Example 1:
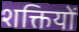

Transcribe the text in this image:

शक्तियों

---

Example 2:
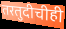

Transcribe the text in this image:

तरतुदीचीही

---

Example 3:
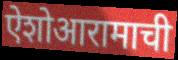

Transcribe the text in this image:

ऐशोआरामाची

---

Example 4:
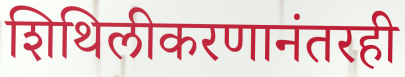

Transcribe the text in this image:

शिथिलीकरणानंतरही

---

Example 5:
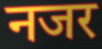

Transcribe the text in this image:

नजर